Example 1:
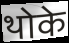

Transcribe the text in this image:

थोके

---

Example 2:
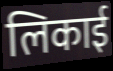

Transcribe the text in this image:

लिकाई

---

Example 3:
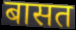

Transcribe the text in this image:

बासत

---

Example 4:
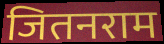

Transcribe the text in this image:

जितनराम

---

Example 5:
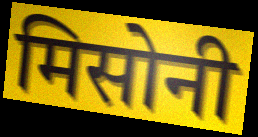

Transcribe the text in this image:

मिसोनी